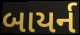
બાયર્ન